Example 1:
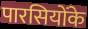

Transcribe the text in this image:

पारसियोंके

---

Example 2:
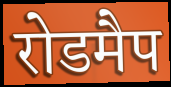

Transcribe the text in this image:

रोडमैप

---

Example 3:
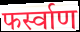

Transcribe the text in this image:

फर्स्वाण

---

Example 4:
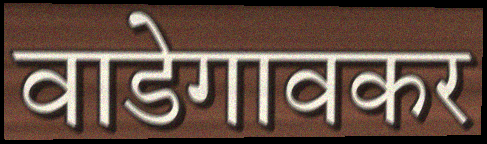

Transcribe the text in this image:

वाडेगावकर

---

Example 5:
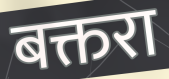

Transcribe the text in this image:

बक्तरा